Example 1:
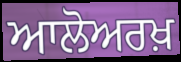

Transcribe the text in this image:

ਆਲੋਅਰਖ਼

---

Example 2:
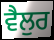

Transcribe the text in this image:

ਵੈਲੁਰ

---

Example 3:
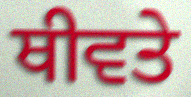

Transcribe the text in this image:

ਥੀਵਤੇ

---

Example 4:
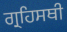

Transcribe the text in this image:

ਗ੍ਰਹਿਸਥੀ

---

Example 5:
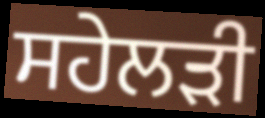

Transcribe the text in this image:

ਸਹੇਲੜੀ